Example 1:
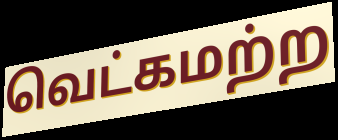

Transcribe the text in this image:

வெட்கமற்ற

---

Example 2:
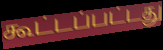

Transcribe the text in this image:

கூட்டப்பட்டது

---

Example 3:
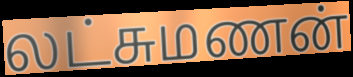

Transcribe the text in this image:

லட்சுமணன்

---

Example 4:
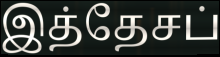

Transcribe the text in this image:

இத்தேசப்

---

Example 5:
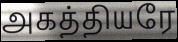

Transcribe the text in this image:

அகத்தியரே